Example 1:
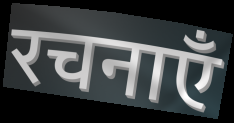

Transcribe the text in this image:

रचनाएँ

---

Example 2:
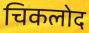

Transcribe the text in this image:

चिकलोद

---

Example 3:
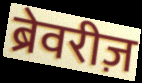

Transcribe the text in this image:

ब्रेवरीज़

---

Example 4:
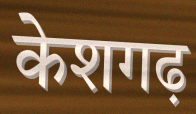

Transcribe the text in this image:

केशगढ़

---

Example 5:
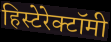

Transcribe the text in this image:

हिस्टेरेक्टॉमी